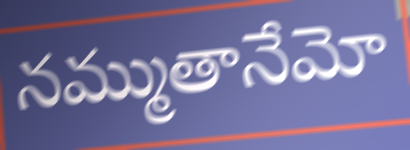
నమ్ముతానేమో